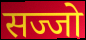
सज्जो